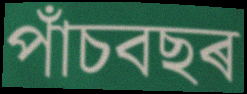
পাঁচবছৰ